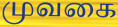
முவகை